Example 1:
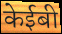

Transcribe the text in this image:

केईबी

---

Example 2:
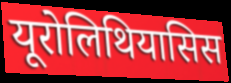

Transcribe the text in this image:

यूरोलिथियासिस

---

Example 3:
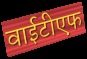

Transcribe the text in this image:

वाईटीएफ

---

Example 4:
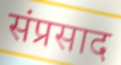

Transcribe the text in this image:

संप्रसाद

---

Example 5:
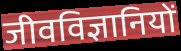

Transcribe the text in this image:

जीवविज्ञानियों